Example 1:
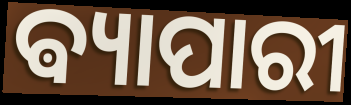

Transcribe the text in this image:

ଵ୍ୟାପାରୀ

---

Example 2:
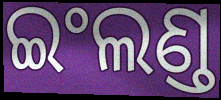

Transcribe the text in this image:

ଇଂଲଣ୍ଡ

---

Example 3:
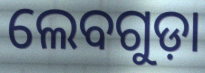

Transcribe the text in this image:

ଲେବଗୁଡ଼ା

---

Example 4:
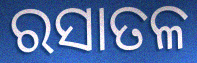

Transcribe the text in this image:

ରସାତଳ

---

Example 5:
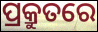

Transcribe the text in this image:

ପ୍ରକ୍ରୁତରେ